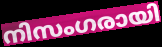
നിസംഗരായി